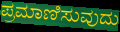
ಪ್ರಮಾಣಿಸುವುದು